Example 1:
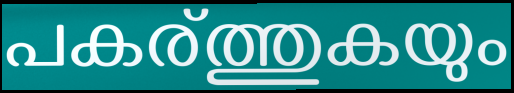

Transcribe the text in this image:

പകര്ത്തുകയും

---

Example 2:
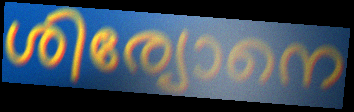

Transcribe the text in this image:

ശിര്യോനെ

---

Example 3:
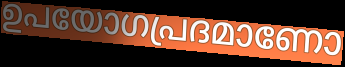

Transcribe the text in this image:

ഉപയോഗപ്രദമാണോ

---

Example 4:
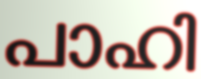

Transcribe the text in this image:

പാഹി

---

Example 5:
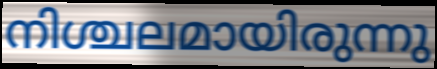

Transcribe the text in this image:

നിശ്ചലമായിരുന്നു